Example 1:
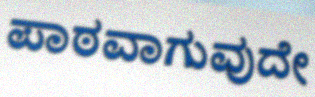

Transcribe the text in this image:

ಪಾಠವಾಗುವುದೇ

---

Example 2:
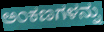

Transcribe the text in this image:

ಅಂಕಣಗಳನ್ನು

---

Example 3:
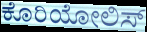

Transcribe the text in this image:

ಕೊರಿಯೋಲಿಸ್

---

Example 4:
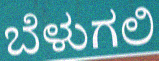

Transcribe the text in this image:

ಬೆಳುಗಲಿ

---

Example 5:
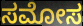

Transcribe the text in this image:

ಸಮೋಸ